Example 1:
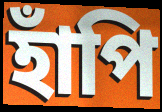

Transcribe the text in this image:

হাঁপি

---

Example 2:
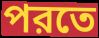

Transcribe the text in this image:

পরতে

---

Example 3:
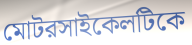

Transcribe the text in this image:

মোটরসাইকেলটিকে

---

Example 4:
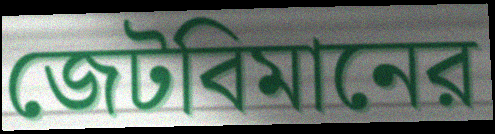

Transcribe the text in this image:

জেটবিমানের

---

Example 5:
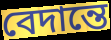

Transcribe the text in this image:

বেদান্তে